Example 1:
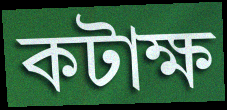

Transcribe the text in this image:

কটাক্ষ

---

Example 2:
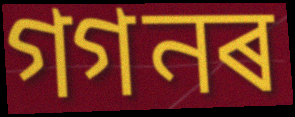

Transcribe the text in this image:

গগনৰ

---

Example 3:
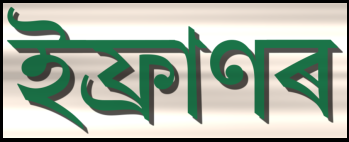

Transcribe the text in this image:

ইফ্ৰাণৰ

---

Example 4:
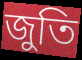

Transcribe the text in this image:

জুতি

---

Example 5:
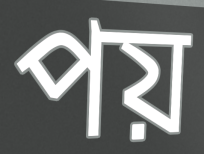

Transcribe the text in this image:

পয়